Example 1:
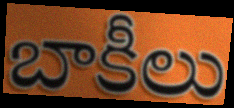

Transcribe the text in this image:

బాకీలు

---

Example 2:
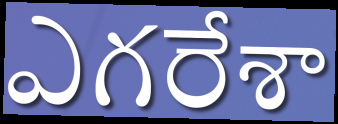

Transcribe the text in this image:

ఎగరేశా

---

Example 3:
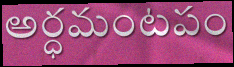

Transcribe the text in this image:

అర్ధమంటపం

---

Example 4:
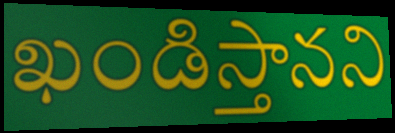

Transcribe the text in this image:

ఖండిస్తానని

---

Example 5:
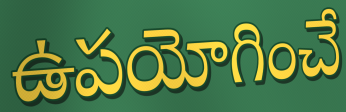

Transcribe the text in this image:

ఉపయోగించే